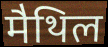
मैथिल